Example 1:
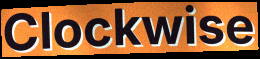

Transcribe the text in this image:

Clockwise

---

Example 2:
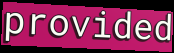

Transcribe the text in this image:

provided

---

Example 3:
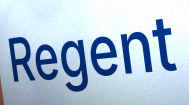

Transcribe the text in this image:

Regent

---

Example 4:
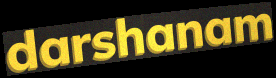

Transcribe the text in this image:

darshanam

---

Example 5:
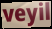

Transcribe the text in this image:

veyil